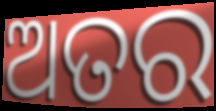
ଅତର